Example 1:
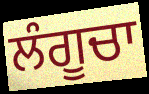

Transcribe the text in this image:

ਲੰਗੂਚਾ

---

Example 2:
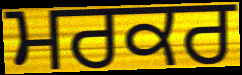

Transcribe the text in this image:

ਮਰਕਰ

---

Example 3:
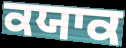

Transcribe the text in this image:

ਕਯਾਕ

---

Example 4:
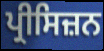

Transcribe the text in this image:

ਪ੍ਰੀਸਿਜ਼ਨ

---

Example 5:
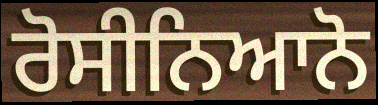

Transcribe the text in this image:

ਰੋਸੀਨਿਆਨੋ